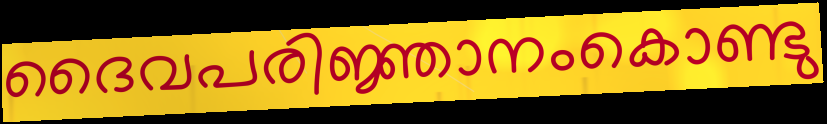
ദൈവപരിജ്ഞാനംകൊണ്ടു